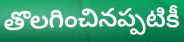
తొలగించినప్పటికీ